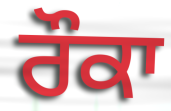
ਰੌਕਾ